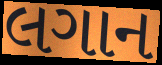
લગાન